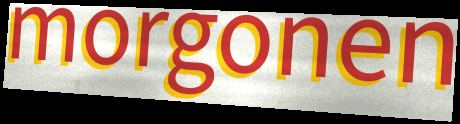
morgonen